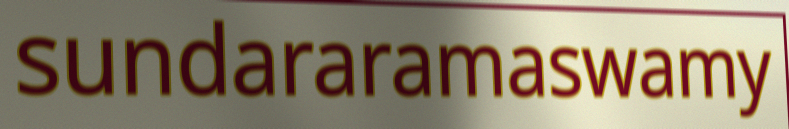
sundararamaswamy